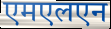
एमएलएन